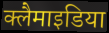
क्लैमाइडिया